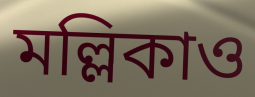
মল্লিকাও